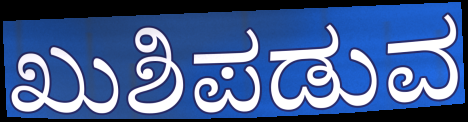
ಖುಶಿಪಡುವ